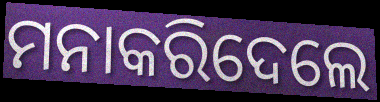
ମନାକରିଦେଲେ